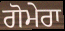
ਗੋਮੇਰਾ